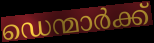
ഡെന്മാർക്ക്